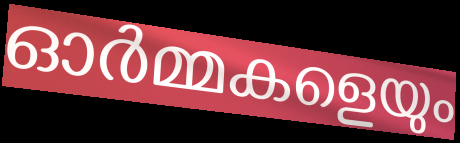
ഓർമ്മകളെയും